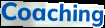
Coaching